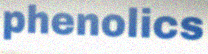
phenolics